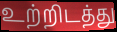
உற்றிடத்து